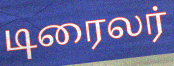
டிரைலர்